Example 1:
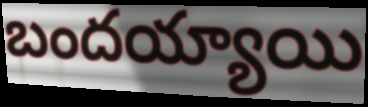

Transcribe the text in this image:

బందయ్యాయి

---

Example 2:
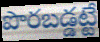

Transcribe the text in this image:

పొరబడ్డట్టే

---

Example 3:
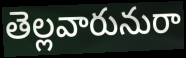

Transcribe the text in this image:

తెల్లవారునురా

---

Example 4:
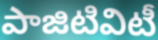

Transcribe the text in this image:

పాజిటివిటీ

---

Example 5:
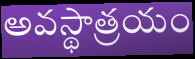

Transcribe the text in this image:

అవస్థాత్రయం